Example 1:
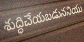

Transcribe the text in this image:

శుద్ధిచేయబడుననియు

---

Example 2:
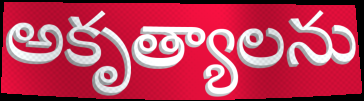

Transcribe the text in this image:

అకృత్యాలను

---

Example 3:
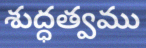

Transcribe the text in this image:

శుద్ధత్వము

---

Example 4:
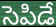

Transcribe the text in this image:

సెపిడే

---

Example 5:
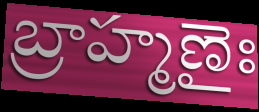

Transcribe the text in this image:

బ్రాహ్మణైః